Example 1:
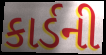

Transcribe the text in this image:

કાર્ડની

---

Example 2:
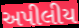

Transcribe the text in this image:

અપીલીય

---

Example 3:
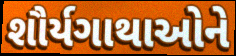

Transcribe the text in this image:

શૌર્યગાથાઓને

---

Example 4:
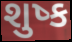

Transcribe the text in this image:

શુષ્ક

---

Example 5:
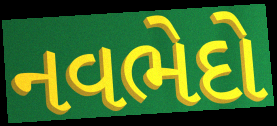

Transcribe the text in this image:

નવભેદો